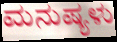
ಮನುಷ್ಯಳು